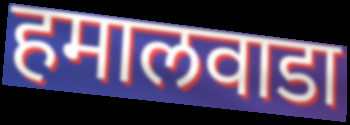
हमालवाडा